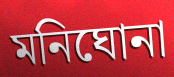
মনিঘোনা